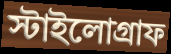
স্টাইলোগ্রাফ